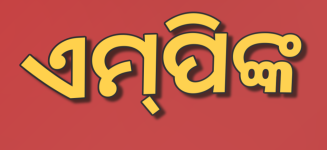
ଏମ୍‌ପିଙ୍କ